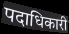
पदाधिकारी